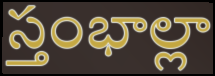
స్తంభాల్లా